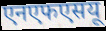
एनएफएसयू